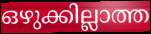
ഒഴുക്കില്ലാത്ത